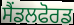
ਸੈਂਡਲਫੋਰਡ